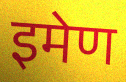
इमेण